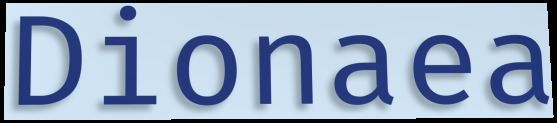
Dionaea